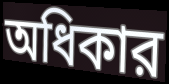
অধিকার